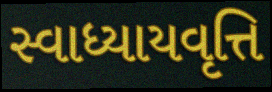
સ્વાધ્યાયવૃત્તિ